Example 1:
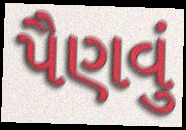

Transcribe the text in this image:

પૈણવું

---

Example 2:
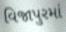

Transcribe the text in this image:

વિજાપુરમાં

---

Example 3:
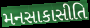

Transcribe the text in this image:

મનસાકાસીતિ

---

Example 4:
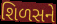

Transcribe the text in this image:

શિળસને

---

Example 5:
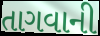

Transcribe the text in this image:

તાગવાની